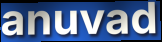
anuvad